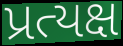
પ્રત્યક્ષ